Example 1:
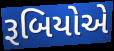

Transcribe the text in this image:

રૂબિયોએ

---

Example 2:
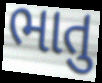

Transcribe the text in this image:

ભાતુ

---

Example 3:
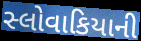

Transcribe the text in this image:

સ્લોવાકિયાની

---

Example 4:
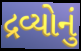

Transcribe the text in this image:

દ્રવ્યોનું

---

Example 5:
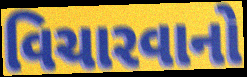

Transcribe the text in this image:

વિચારવાનો